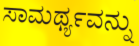
ಸಾಮರ್ಥ್ಯವನ್ನು